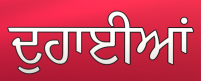
ਦੁਹਾਈਆਂ